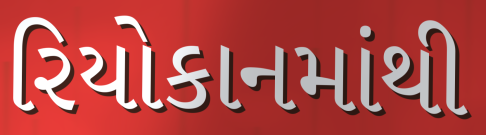
રિયોકાનમાંથી